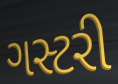
ગસ્ટરી